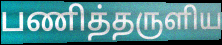
பணித்தருளிய